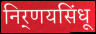
निर्णयसिंधू